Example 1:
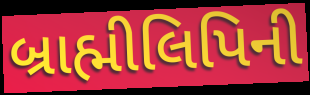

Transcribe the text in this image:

બ્રાહ્મીલિપિની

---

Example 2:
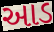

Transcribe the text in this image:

આડ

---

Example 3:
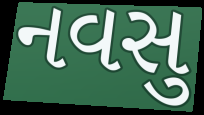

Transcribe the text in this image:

નવસુ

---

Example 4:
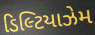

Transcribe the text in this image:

ડિલ્ટિયાઝેમ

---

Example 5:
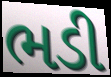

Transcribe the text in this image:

ભડી